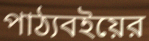
পাঠ্যবইয়ের